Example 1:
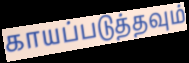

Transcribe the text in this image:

காயப்படுத்தவும்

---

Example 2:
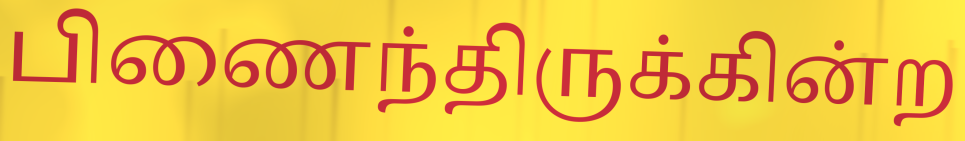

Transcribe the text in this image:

பிணைந்திருக்கின்ற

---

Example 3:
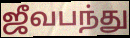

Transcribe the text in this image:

ஜீவபந்து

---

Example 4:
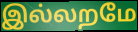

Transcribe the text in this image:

இல்லறமே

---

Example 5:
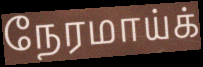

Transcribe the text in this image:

நேரமாய்க்